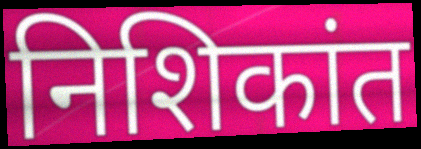
निशिकांत